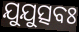
ଯୁଯୁତ୍ସବଃ